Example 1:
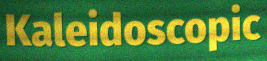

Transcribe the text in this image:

Kaleidoscopic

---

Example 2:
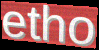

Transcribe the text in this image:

etho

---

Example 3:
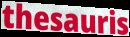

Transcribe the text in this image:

thesauris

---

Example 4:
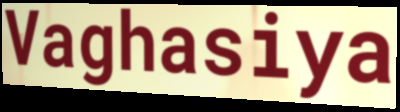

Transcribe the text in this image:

Vaghasiya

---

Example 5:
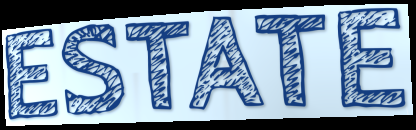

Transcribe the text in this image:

ESTATE